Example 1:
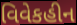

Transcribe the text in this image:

વિવેકહીન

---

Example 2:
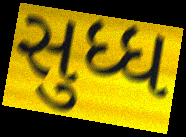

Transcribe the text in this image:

સુધ્ધ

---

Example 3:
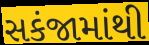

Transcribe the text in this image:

સકંજામાંથી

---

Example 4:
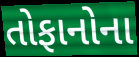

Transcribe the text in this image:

તોફાનોના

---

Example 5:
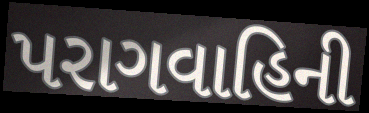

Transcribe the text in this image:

પરાગવાહિની